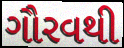
ગૌરવથી